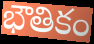
భౌతికం